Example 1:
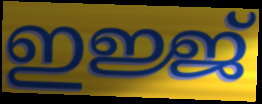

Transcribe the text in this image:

ഇജ്ജ്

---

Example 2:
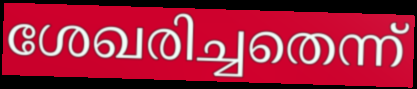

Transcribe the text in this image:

ശേഖരിച്ചതെന്ന്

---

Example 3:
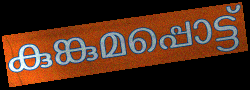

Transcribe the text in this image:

കുങ്കുമപ്പൊട്ട്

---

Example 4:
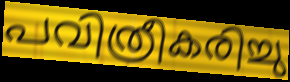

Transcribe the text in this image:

പവിത്രീകരിച്ചു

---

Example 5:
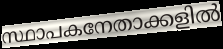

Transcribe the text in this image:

സ്ഥാപകനേതാക്കളിൽ